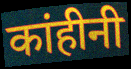
कांहीनी